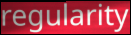
regularity